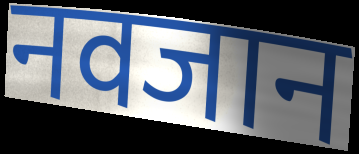
नवजान